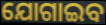
ଯୋଗାଇବ